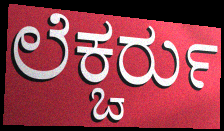
ಲೆಕ್ಚರ್ರು